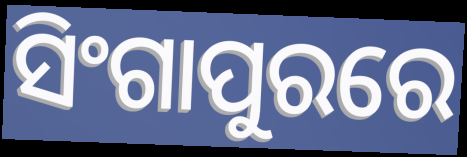
ସିଂଗାପୁରରେ